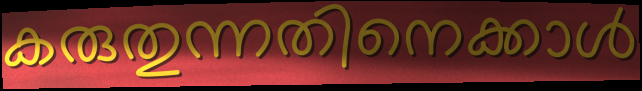
കരുതുന്നതിനെക്കാൾ